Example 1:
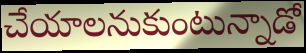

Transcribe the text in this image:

చేయాలనుకుంటున్నాడో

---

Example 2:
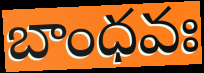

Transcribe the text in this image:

బాంధవః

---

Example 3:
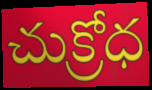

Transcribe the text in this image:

చుక్రోధ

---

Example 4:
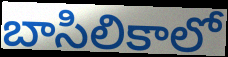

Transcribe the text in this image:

బాసిలికాలో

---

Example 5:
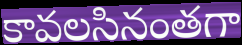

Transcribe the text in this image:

కావలసినంతగా